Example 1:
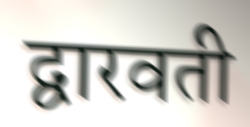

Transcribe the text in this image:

द्वारवती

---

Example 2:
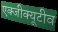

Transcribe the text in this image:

एक्जीक्यूटीव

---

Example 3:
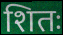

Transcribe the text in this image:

शितः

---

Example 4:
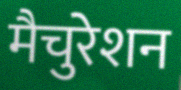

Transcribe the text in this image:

मैचुरेशन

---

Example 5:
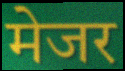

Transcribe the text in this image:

मेजर